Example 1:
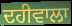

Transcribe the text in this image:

ਦਹੀਵਾਲਾ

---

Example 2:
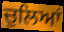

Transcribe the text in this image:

ਚੁਲਿਆਂ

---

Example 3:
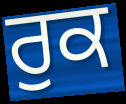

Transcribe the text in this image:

ਰੁਕ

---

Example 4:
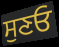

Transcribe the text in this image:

ਸੁਣਓ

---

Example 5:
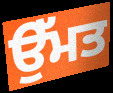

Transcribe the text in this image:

ਉੱਮਤ